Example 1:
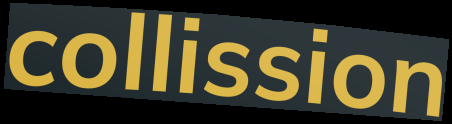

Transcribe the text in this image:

collission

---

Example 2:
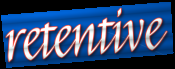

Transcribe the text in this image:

retentive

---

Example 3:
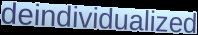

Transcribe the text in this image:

deindividualized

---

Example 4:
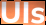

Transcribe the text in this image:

UIs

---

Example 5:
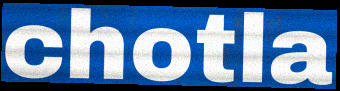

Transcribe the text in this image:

chotla